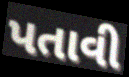
પતાવી